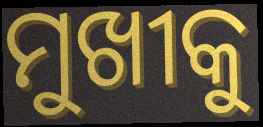
ମୁଖୀକୁ